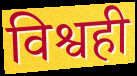
विश्वही